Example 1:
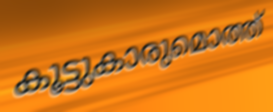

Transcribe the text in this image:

കൂട്ടുകാരുമൊത്ത്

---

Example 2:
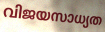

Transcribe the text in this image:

വിജയസാധ്യത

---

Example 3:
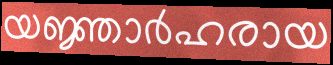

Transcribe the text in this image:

യജ്ഞാർഹരായ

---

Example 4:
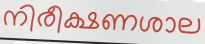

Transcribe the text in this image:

നിരീക്ഷണശാല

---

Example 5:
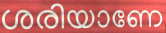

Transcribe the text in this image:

ശരിയാണേ